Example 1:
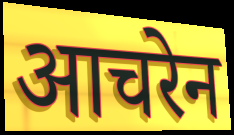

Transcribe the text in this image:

आचरेन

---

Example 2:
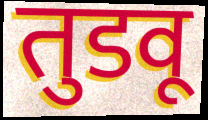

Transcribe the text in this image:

तुडवू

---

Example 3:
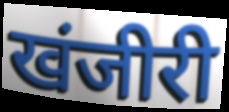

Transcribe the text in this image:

खंजीरी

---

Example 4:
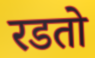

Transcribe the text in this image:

रडतो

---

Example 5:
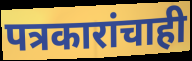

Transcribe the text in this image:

पत्रकारांचाही